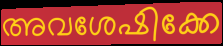
അവശേഷിക്കേ